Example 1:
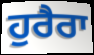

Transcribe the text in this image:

ਹੁਰੈਰਾ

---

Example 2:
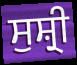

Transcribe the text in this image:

ਸੁਸ਼੍ਰੀ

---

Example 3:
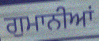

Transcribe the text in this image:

ਗੁਮਾਨੀਆਂ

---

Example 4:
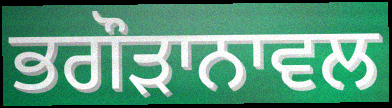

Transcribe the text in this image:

ਭਗੌੜਾਨਾਵਲ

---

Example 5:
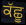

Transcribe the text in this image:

ਕੱਛੂ